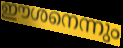
ഈശനെന്നും